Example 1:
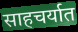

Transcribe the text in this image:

साहचर्यात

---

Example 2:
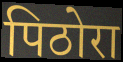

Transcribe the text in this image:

पिठोरा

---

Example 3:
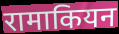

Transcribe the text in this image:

रामाकियन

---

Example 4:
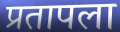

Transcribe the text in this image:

प्रतापला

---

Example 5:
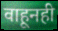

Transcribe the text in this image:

वाहूनही